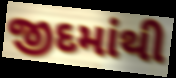
જીદમાંથી